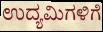
ಉದ್ಯಮಿಗಳಿಗೆ